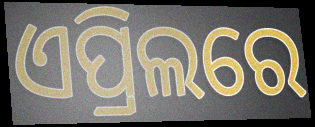
ଏପ୍ରିଲରେ